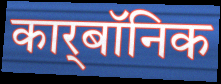
कार्‌बॉनिक